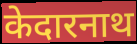
केदारनाथ